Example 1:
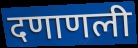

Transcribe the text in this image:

दणाणली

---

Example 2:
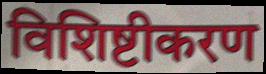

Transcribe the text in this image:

विशिष्टीकरण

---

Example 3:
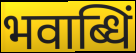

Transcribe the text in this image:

भवाब्धिं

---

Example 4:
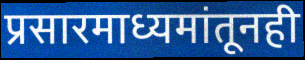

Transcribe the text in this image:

प्रसारमाध्यमांतूनही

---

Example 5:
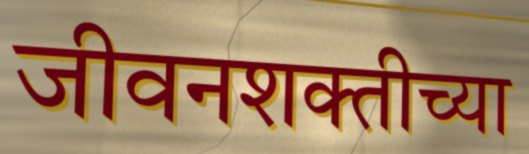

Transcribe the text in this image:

जीवनशक्तीच्या